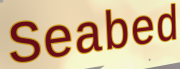
Seabed